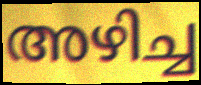
അഴിച്ച